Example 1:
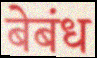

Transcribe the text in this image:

बेबंध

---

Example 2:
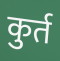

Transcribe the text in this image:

कुर्त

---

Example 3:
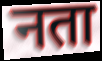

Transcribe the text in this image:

नता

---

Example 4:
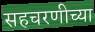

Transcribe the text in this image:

सहचरणीच्या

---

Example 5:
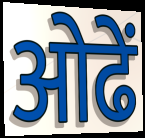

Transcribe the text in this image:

ओढें